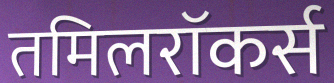
तमिलरॉकर्स